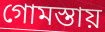
গোমস্তায়